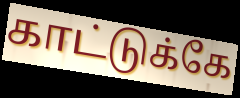
காட்டுக்கே